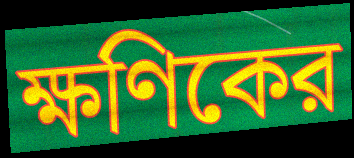
ক্ষণিকের